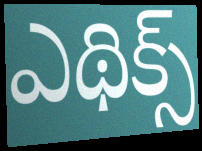
ఎథిక్స్